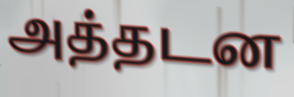
அத்தடன